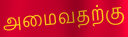
அமைவதற்கு